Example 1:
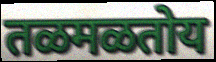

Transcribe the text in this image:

तळमळतोय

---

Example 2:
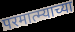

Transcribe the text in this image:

परमात्म्याच्या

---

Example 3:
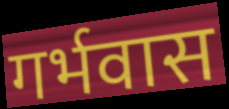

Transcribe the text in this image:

गर्भवास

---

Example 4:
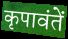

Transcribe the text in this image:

कृपावंतें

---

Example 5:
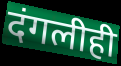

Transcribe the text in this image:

दंगलीही